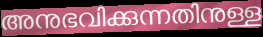
അനുഭവിക്കുന്നതിനുള്ള